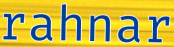
rahnar